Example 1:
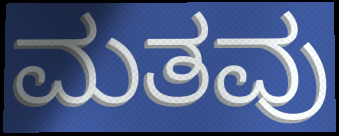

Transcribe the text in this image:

ಮತವು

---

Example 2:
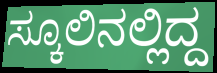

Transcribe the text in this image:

ಸ್ಕೂಲಿನಲ್ಲಿದ್ದ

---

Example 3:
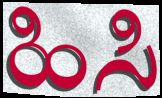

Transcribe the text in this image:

ಹಿಸಿ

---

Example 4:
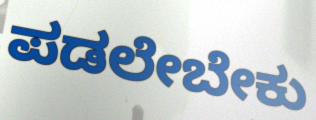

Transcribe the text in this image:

ಪಡಲೇಬೇಕು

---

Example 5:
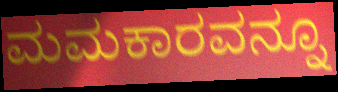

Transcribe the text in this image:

ಮಮಕಾರವನ್ನೂ